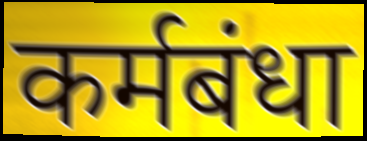
कर्मबंधा